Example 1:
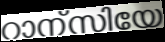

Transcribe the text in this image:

റാന്സിയേ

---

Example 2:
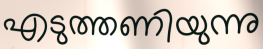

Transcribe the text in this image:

എടുത്തണിയുന്നു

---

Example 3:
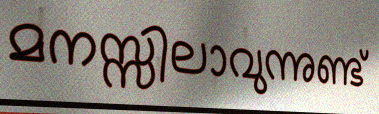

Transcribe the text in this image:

മനസ്സിലാവുന്നുണ്ട്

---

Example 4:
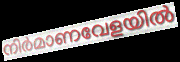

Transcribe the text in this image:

നിർമാണവേളയിൽ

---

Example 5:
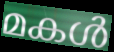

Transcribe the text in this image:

മകൾ